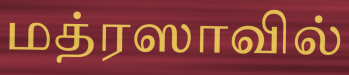
மத்ரஸாவில்